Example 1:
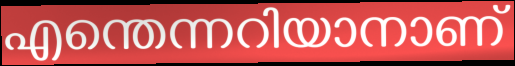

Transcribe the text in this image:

എന്തെന്നറിയാനാണ്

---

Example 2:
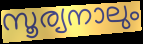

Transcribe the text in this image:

സൂര്യനാലും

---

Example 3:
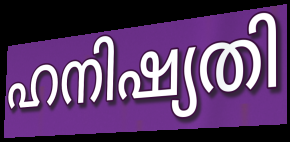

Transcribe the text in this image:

ഹനിഷ്യതി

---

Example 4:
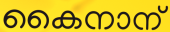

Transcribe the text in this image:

കൈനാന്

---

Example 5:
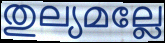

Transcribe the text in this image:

തുല്യമല്ലേ